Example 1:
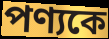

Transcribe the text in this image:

পণ্যকে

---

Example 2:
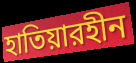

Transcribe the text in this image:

হাতিয়ারহীন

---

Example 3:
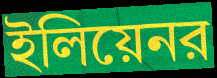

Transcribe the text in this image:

ইলিয়েনর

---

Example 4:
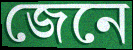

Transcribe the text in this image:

জেনে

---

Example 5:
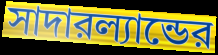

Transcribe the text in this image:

সাদারল্যান্ডের